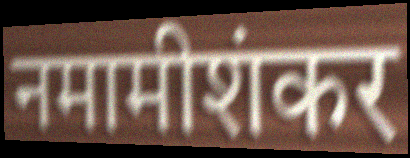
नमामीशंकर